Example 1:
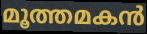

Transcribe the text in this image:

മൂത്തമകൻ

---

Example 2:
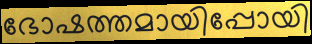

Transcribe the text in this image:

ഭോഷത്തമായിപ്പോയി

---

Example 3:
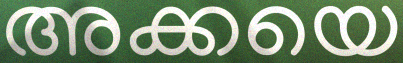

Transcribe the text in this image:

അക്കയെ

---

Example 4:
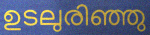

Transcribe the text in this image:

ഉടലുരിഞ്ഞു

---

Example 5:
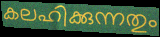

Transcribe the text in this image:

കലഹിക്കുന്നതും